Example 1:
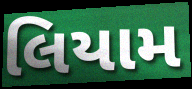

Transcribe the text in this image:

લિયામ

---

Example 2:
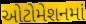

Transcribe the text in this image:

ઓટોમેશનમાં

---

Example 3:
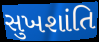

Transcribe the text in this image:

સુખશાંતિ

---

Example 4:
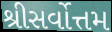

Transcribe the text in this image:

શ્રીસર્વોત્તમ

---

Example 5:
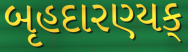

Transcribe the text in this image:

બૃહદારણ્યક્